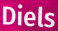
Diels